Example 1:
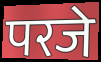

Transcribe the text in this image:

परजे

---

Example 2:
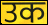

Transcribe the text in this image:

उक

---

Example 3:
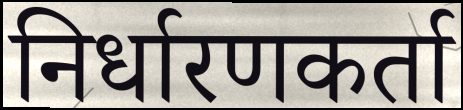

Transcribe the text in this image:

निर्धारणकर्ता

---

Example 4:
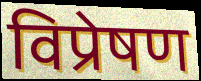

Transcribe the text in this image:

विप्रेषण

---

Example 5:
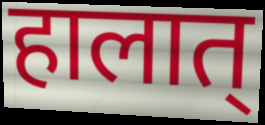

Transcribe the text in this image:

हालात्